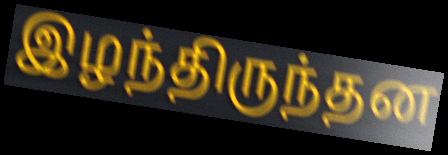
இழந்திருந்தன